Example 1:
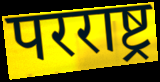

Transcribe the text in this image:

परराष्ट्र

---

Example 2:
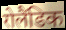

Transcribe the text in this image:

रोलैंडिक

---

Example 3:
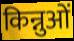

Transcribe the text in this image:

किन्नुओं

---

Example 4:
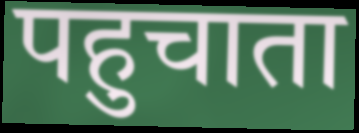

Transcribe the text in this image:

पहुचाता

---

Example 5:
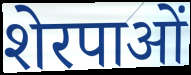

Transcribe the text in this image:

शेरपाओं